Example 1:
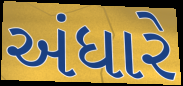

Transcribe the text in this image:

અંધારે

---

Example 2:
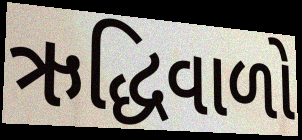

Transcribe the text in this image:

ઋદ્ધિવાળો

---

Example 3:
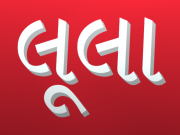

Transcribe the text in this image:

લૂલા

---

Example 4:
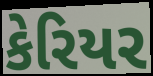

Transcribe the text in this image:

કેરિયર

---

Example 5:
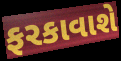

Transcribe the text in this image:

ફરકાવાશે